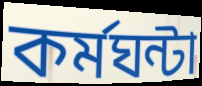
কর্মঘন্টা